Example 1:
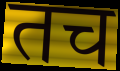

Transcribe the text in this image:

तच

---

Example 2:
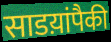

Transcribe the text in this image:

साडय़ांपैकी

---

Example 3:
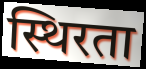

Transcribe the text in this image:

स्थिरता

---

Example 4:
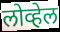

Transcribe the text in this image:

लोव्हेल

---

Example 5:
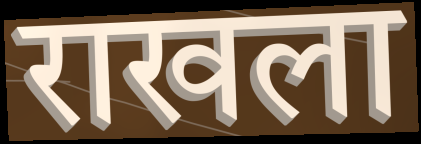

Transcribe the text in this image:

राखला